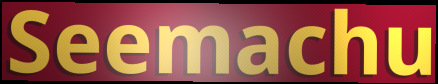
Seemachu